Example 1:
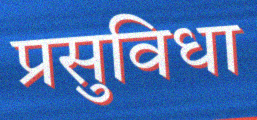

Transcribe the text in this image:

प्रसुविधा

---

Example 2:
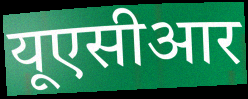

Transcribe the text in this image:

यूएसीआर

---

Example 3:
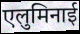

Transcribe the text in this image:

एलुमिनाई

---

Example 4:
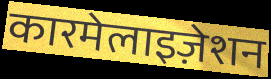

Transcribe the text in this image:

कारमेलाइज़ेशन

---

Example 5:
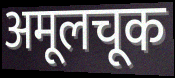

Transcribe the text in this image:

अमूलचूक